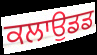
ਕਲਾਉਡਡ